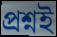
প্রশ্নই